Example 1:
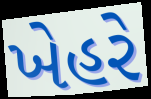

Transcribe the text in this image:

ખેહરે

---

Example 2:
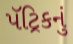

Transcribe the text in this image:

પૅટ્રિકનું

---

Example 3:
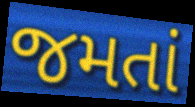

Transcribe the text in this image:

જમતાં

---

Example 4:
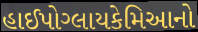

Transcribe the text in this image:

હાઈપોગ્લાયકેમિઆનો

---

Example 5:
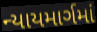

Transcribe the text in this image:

ન્યાયમાર્ગમાં